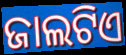
ଜାଲଟିଏ